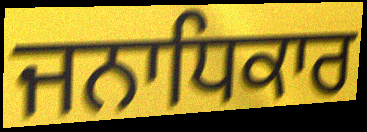
ਜਨਾਧਿਕਾਰ